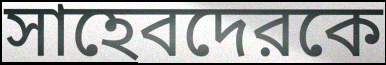
সাহেবদেরকে